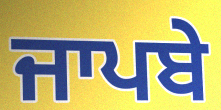
ਜਾਪਬੇ